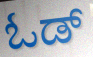
ಓಡ್